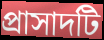
প্রাসাদটি